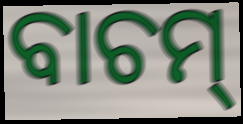
ବାଚମ୍